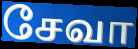
சேவா